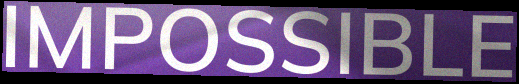
IMPOSSIBLE